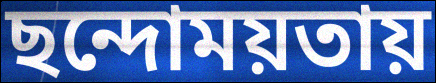
ছন্দোময়তায়